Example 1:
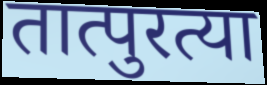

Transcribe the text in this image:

तात्पुरत्या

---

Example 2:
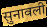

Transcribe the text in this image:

सुनावली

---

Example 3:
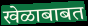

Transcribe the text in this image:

खेळाबाबत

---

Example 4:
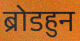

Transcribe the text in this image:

ब्रोडहुन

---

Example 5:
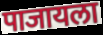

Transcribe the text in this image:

पाजायला